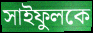
সাইফুলকে